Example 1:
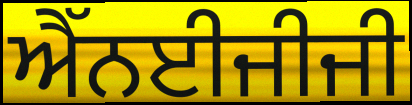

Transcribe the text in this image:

ਐੱਨਈਜੀਜੀ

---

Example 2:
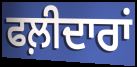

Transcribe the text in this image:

ਫਲ਼ੀਦਾਰਾਂ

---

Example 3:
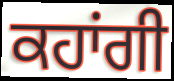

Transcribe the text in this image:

ਕਹਾਂਗੀ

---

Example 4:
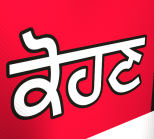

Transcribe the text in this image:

ਕੋਹਣ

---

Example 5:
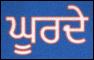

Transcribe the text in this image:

ਘੂਰਦੇ